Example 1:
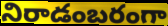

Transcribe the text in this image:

నిరాడంబరంగా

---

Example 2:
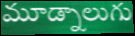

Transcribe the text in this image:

మూడ్నాలుగు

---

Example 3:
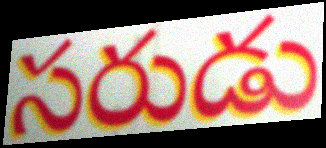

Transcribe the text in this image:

సరుడు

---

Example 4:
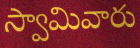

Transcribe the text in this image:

స్వామివారు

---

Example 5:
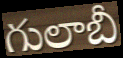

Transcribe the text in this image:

గులాబీ